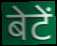
बेटें